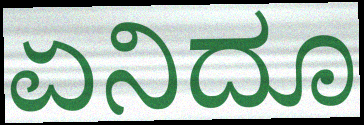
ಏನಿದೂ